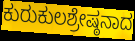
ಕುರುಕುಲಶ್ರೇಷ್ಠನಾದ